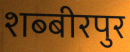
शब्‍बीरपुर